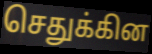
செதுக்கின